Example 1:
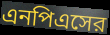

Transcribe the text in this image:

এনপিএসের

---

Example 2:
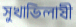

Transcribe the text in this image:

সুখাভিলাষী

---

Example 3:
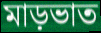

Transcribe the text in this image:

মাড়ভাত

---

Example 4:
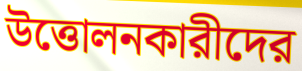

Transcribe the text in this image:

উত্তোলনকারীদের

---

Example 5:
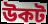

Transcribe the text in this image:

উকট